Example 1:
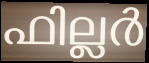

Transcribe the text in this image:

ഫില്ലർ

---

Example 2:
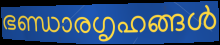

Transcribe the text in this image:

ഭണ്ഡാരഗൃഹങ്ങൾ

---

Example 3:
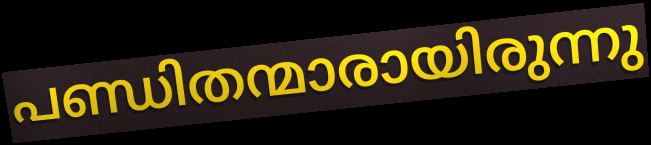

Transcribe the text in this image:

പണ്ഡിതന്മാരായിരുന്നു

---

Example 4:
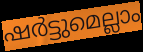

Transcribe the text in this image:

ഷർട്ടുമെല്ലാം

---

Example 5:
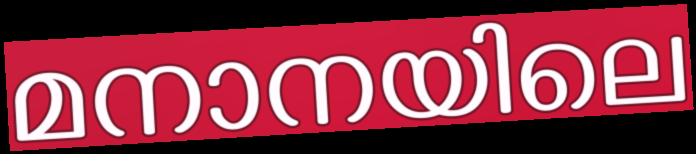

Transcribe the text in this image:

മനാനയിലെ